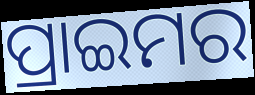
ପ୍ରାଇମର